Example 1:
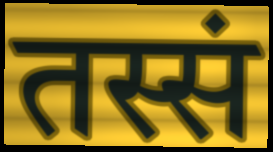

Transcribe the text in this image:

तस्सं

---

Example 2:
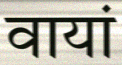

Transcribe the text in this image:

वायां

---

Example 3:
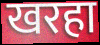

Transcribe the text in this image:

खरहा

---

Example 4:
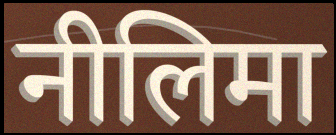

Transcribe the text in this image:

नीलिमा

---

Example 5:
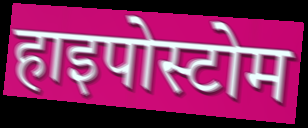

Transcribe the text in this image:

हाइपोस्टोम